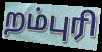
றம்புரி